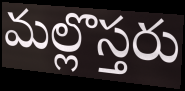
మల్లొస్తరు